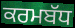
ਕਰਮਬੱਧ